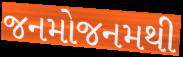
જનમોજનમથી